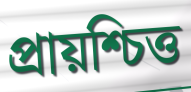
প্ৰায়শ্চিত্ত